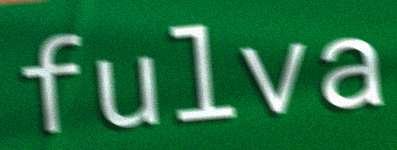
fulva